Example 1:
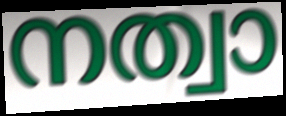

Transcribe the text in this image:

നത്വാ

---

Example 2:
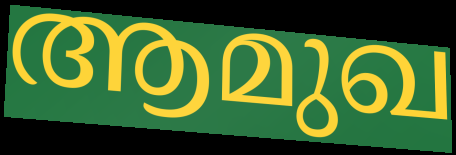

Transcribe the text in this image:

ആമുഖ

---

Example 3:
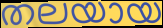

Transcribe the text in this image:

തലയായ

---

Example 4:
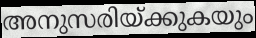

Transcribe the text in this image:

അനുസരിയ്ക്കുകയും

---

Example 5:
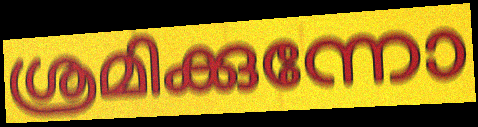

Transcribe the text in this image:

ശ്രമിക്കുന്നോ